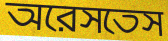
অরেসতেস